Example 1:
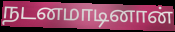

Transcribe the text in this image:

நடனமாடினான்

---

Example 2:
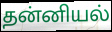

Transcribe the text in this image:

தன்னியல்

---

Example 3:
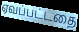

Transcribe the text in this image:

ஏவப்பட்டதை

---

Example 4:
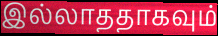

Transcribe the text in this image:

இல்லாததாகவும்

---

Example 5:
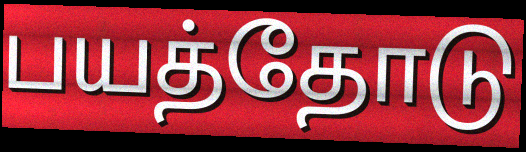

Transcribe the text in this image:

பயத்தோடு